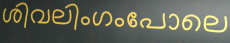
ശിവലിംഗംപോലെ